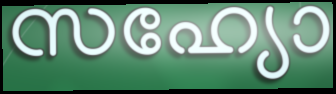
സഹ്യോ